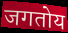
जगतोय